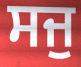
ਸਜੁ